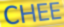
CHEE